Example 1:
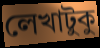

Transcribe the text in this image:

লেখাটুকু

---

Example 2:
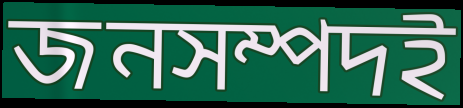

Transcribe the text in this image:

জনসম্পদই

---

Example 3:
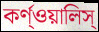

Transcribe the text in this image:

কর্ণ্ওয়ালিস্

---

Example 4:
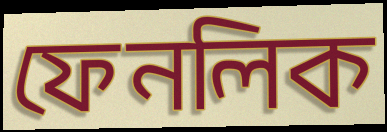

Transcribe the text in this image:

ফেনলিক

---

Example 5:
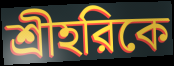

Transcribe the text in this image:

শ্রীহরিকে